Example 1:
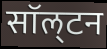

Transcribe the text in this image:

सॉल्टन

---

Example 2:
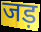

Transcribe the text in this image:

जड़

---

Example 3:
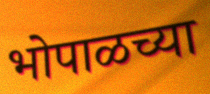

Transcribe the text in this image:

भोपाळच्या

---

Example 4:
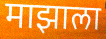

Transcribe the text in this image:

माझाला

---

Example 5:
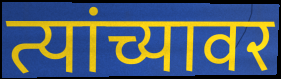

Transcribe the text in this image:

त्यांच्यावर